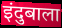
इंदुबाला